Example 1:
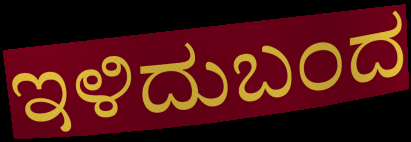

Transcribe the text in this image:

ಇಳಿದುಬಂದ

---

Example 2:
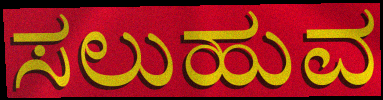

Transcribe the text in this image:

ಸಲುಹುವ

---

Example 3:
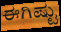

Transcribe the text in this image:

ಈಗಿಷ್ಟು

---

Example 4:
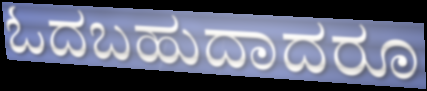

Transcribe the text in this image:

ಓದಬಹುದಾದರೂ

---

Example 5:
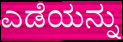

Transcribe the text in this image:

ಎಡೆಯನ್ನು